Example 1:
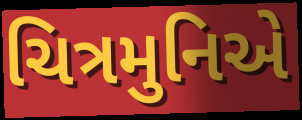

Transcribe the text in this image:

ચિત્રમુનિએ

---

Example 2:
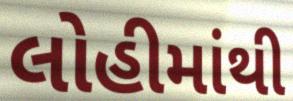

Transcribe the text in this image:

લોહીમાંથી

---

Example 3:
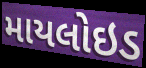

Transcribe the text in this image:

માયલોઇડ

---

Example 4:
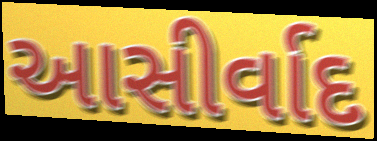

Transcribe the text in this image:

આસીર્વાદ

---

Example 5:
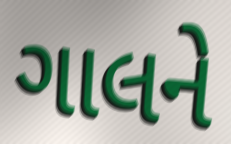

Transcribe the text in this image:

ગાલને